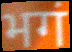
भगं